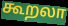
கூறலா